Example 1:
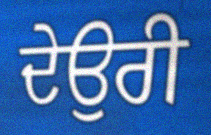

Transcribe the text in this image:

ਦੇਉਰੀ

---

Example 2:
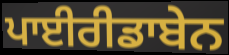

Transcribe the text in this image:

ਪਾਈਰੀਡਾਬੇਨ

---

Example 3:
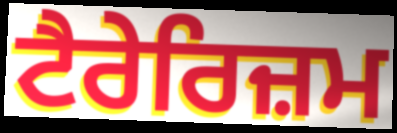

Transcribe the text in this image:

ਟੈਰੇਰਿਜ਼ਮ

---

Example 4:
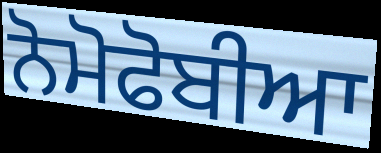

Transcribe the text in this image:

ਨੋਮੋਫੋਬੀਆ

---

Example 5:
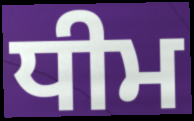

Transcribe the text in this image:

ਧੀਮ